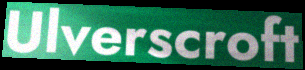
Ulverscroft